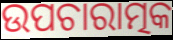
ଉପଚାରାତ୍ମକ